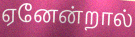
ஏனேன்றால்